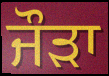
ਜੌੜਾ